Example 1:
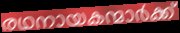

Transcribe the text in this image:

രഥനായകന്മാർക്ക്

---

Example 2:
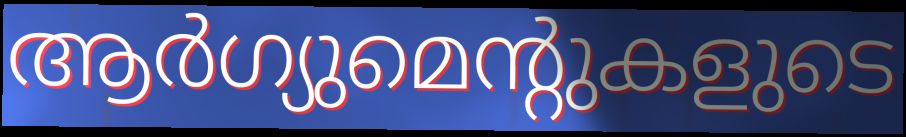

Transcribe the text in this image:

ആർഗ്യുമെന്റുകളുടെ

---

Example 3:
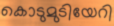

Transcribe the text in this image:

കൊടുമുടിയേറി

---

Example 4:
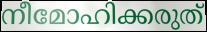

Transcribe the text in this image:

നീമോഹിക്കരുത്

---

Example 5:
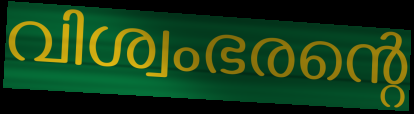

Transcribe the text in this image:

വിശ്വംഭരന്റെ